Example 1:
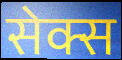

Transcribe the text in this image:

सेक्स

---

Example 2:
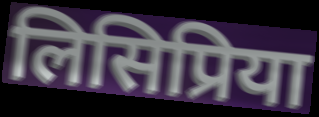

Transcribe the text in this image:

लिसिप्रिया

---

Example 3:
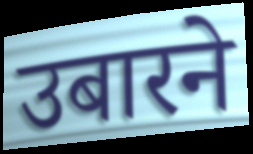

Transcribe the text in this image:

उबारने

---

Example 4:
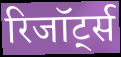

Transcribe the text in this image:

रिजॉर्ट्स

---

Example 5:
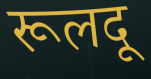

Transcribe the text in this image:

रूलदू